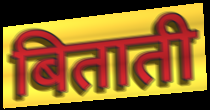
बिताती